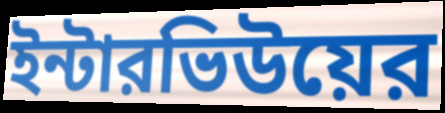
ইন্টারভিউয়ের